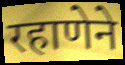
रहाणेने